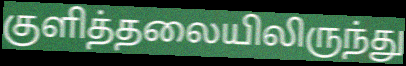
குளித்தலையிலிருந்து